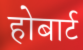
होबार्ट